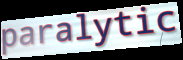
paralytic